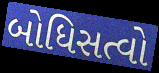
બોધિસત્વો